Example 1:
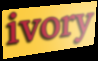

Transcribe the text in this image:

ivory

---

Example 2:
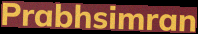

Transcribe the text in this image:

Prabhsimran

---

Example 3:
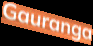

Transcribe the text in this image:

Gauranga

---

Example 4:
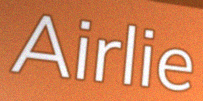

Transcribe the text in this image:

Airlie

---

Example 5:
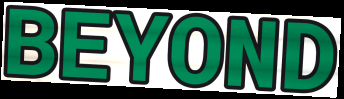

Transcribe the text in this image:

BEYOND